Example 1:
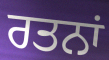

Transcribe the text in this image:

ਰਤਨਾਂ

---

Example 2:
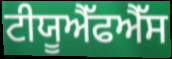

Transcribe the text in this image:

ਟੀਯੂਐੱਫਐੱਸ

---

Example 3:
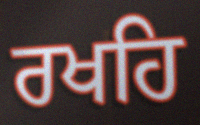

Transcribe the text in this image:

ਰਖਹਿ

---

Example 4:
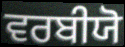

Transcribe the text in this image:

ਵਰਬੀਯੋ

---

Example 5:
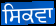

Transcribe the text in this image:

ਸਿਕਵਾ